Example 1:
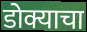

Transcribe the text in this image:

डोक्याचा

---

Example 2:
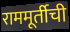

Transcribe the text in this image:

राममूर्तीची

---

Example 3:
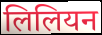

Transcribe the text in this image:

लिलियन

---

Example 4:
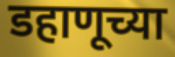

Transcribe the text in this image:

डहाणूच्या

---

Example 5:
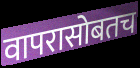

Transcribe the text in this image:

वापरासोबतच